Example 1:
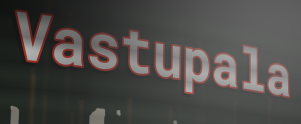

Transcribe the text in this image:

Vastupala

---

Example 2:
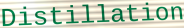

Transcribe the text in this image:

Distillation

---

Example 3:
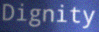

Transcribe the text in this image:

Dignity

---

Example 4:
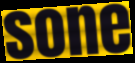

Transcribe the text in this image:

sone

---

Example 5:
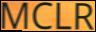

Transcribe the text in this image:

MCLR